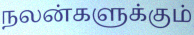
நலன்களுக்கும்